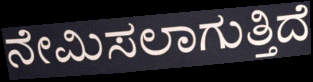
ನೇಮಿಸಲಾಗುತ್ತಿದೆ